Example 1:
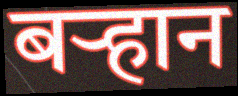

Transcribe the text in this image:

बऱ्हान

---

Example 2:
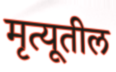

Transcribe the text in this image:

मृत्यूतील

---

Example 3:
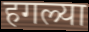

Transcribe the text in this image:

हगल्या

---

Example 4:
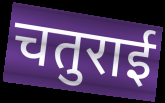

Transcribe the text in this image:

चतुराई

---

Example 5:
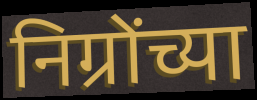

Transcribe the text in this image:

निग्रोंच्या